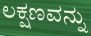
ಲಕ್ಷಣವನ್ನು